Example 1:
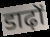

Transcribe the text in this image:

डाढ़ों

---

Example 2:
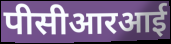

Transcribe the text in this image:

पीसीआरआई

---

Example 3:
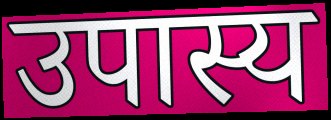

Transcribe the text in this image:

उपास्य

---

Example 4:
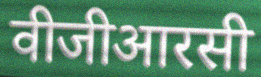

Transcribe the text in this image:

वीजीआरसी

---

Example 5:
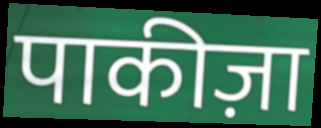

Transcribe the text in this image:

पाकीज़ा